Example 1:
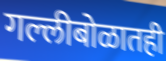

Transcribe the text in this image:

गल्लीबोळातही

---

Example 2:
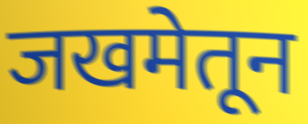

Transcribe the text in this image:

जखमेतून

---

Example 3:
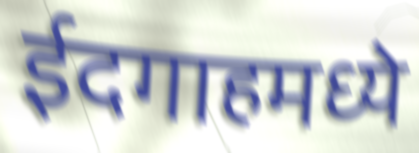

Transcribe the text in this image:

ईदगाहमध्ये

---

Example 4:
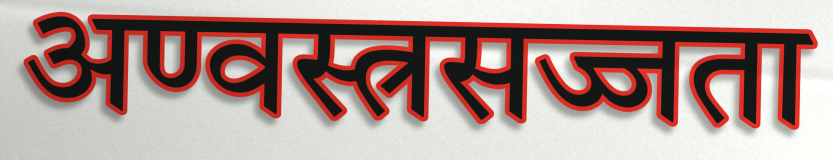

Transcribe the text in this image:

अण्वस्त्रसज्जता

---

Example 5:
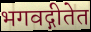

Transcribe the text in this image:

भगवद्गीतेत